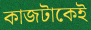
কাজটাকেই